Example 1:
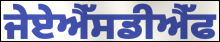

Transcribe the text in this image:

ਜੇਏਐੱਸਡੀਐੱਫ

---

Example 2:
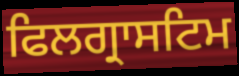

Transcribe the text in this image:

ਫਿਲਗ੍ਰਾਸਟਿਮ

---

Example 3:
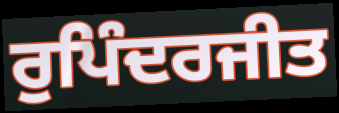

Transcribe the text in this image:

ਰੁਪਿੰਦਰਜੀਤ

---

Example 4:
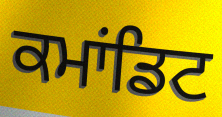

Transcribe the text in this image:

ਕਮਾਂਡਿਟ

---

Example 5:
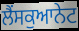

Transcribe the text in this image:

ਲੈਂਸਕੁਆਨੇਟ